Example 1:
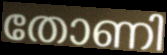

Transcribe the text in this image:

തോണി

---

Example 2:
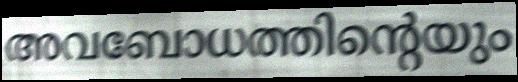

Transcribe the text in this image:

അവബോധത്തിന്റെയും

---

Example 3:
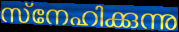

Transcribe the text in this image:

സ്‌നേഹിക്കുന്നു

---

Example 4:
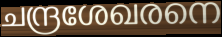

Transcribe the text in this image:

ചന്ദ്രശേഖരനെ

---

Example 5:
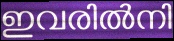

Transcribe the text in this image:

ഇവരിൽനി